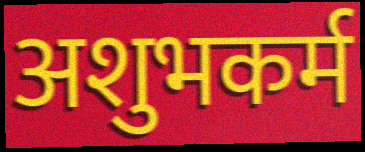
अशुभकर्म